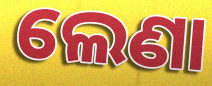
ଲେଣା